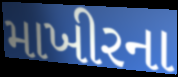
માખીરના